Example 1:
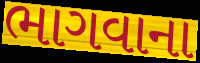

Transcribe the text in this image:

ભાગવાના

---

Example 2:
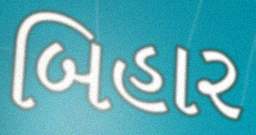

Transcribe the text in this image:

બિહાર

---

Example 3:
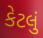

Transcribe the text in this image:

કેટલું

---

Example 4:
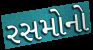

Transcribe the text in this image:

રસમોનો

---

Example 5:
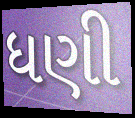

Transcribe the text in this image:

ધણી